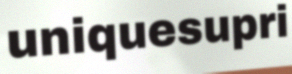
uniquesupri